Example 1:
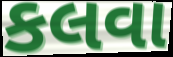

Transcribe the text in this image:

કલવા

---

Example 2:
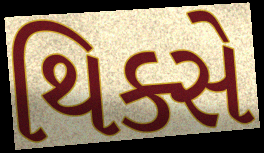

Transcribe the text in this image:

થિક્સે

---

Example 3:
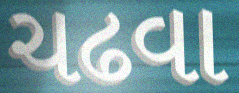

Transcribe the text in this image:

ચઢવા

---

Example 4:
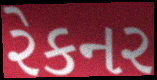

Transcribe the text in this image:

રેકનર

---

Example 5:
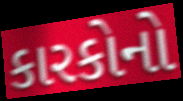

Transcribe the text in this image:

કારકોનો